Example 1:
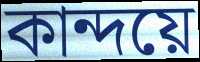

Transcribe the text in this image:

কান্দয়ে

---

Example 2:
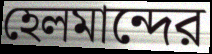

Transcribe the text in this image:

হেলমান্দের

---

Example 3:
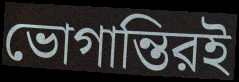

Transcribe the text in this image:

ভোগান্তিরই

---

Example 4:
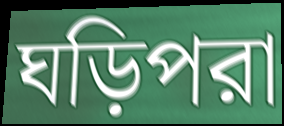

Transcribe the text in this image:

ঘড়িপরা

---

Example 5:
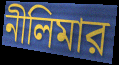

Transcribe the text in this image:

নীলিমার